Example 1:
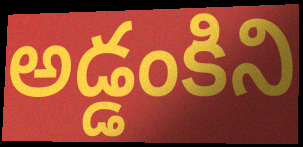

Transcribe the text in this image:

అడ్డంకిని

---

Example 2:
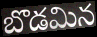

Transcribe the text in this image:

బొడమిన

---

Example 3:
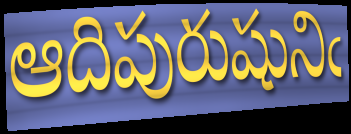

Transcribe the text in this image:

ఆదిపురుషునిఁ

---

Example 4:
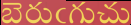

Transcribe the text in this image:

బెరుఁగుచు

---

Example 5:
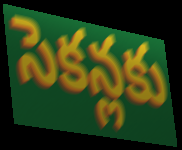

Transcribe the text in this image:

సెకన్లకు